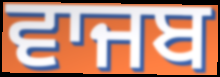
ਵਾਜਬ